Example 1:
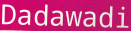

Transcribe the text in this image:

Dadawadi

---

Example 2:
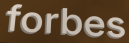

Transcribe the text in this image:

forbes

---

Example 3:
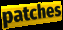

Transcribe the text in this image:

patches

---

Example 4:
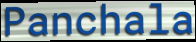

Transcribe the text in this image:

Panchala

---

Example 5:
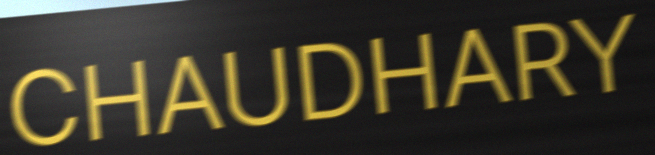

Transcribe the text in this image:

CHAUDHARY